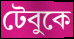
টেবুকে